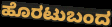
ಹೊರಟುಬಂದ